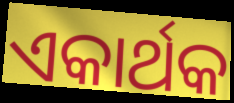
ଏକାର୍ଥକ